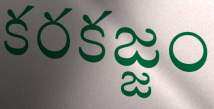
కరకజ్జం